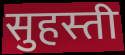
सुहस्ती